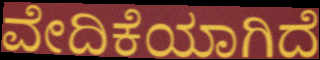
ವೇದಿಕೆಯಾಗಿದೆ